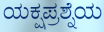
ಯಕ್ಷಪ್ರಶ್ನೆಯ